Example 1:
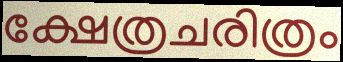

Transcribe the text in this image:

ക്ഷേത്രചരിത്രം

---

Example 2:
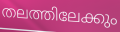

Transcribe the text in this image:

തലത്തിലേക്കും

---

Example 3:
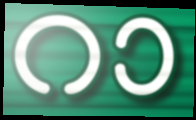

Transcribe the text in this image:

റാ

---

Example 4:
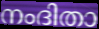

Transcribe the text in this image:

നംദിതാ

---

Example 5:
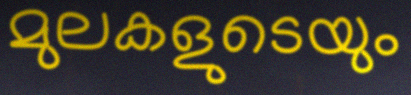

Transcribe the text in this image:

മുലകളുടെയും